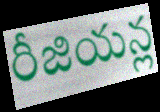
రీజియన్ల